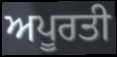
ਅਪੂਰਤੀ